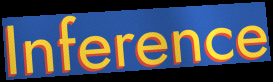
Inference